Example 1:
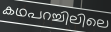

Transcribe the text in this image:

കഥപറച്ചിലിലെ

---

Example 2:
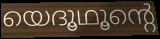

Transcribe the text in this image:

യെദൂഥൂന്റെ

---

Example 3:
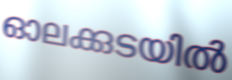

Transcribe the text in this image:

ഓലക്കുടയിൽ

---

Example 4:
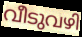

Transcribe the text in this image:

വീടുവഴി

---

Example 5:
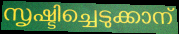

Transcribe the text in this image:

സൃഷ്ടിച്ചെടുക്കാന്